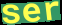
ser